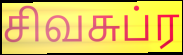
சிவசுப்ர